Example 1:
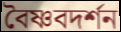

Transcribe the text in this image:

বৈষ্ণবদর্শন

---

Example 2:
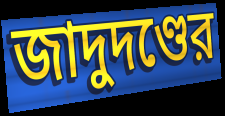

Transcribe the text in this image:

জাদুদণ্ডের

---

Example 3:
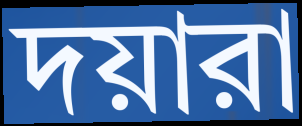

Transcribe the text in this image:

দয়ারা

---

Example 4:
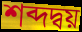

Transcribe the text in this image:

শব্দদ্বয়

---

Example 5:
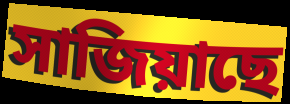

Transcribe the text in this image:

সাজিয়াছে